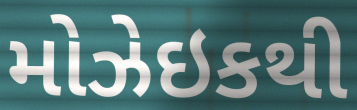
મોઝેઇકથી